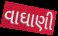
વાઘાણી